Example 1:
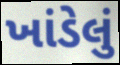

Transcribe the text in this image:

ખાંડેલું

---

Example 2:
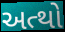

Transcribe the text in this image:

અત્થો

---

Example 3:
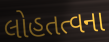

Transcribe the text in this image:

લોહતત્વના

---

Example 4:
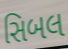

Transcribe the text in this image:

સિબલ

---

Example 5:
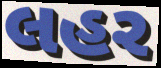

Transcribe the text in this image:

લહર